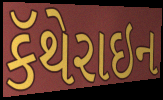
કૅથેરાઇન